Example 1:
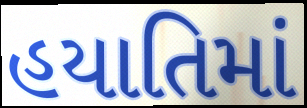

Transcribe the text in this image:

હયાતિમાં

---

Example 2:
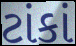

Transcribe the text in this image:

ટાંકાં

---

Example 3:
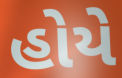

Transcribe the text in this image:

હોયે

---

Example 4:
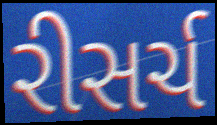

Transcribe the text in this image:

રીસર્ચ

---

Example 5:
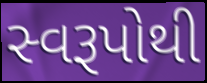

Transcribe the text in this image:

સ્વરૂપોથી